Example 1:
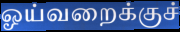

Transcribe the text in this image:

ஓய்வறைக்குச்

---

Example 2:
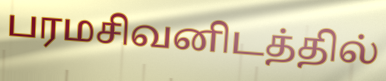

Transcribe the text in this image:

பரமசிவனிடத்தில்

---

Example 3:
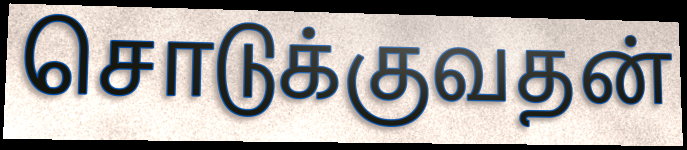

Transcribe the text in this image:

சொடுக்குவதன்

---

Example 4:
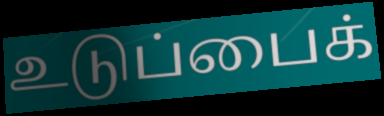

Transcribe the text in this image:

உடுப்பைக்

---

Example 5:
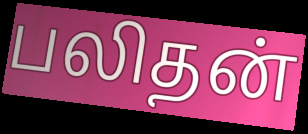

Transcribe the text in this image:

பலிதன்